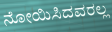
ನೋಯಿಸಿದವರಲ್ಲ